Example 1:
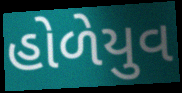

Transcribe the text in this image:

હોળેયુવ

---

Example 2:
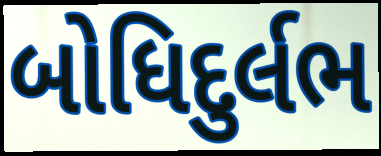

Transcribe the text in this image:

બોધિદુર્લભ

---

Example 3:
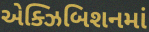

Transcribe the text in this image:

એક્ઝિબિશનમાં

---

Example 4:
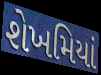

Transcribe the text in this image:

શેખમિયાં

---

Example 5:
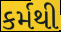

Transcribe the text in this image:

કર્મથી